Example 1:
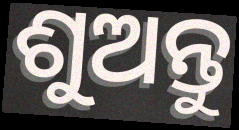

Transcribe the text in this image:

ଶୁଅନ୍ତୁ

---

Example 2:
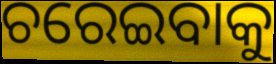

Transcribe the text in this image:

ଚରେଇବାକୁ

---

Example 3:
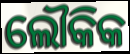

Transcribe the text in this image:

ଲୌକିକ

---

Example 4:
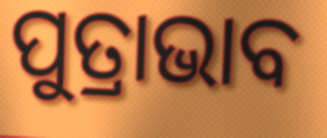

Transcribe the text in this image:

ପୁତ୍ରାଭାବ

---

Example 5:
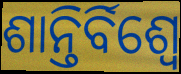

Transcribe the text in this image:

ଶାନ୍ତିର୍ବିଶ୍ୱେ